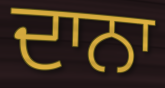
ਦਾਨਾ